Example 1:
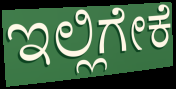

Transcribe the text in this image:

ಇಲ್ಲಿಗೇಕೆ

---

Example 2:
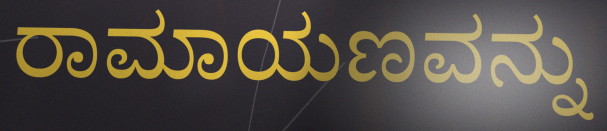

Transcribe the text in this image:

ರಾಮಾಯಣವನ್ನು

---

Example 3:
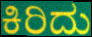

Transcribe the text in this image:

ಕಿರಿದು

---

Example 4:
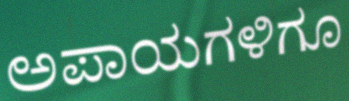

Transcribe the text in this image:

ಅಪಾಯಗಳಿಗೂ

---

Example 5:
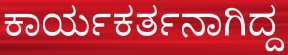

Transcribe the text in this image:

ಕಾರ್ಯಕರ್ತನಾಗಿದ್ದ